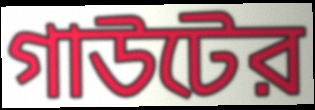
গাউটের